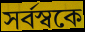
সর্বস্বকে